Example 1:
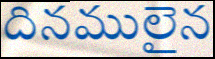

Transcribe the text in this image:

దినములైన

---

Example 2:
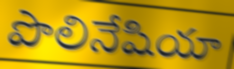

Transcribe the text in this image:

పొలినేషియా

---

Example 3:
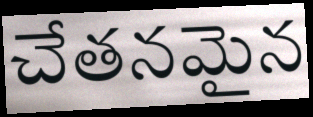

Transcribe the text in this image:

చేతనమైన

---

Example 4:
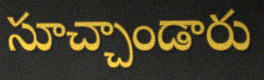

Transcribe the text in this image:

సూచ్చాండారు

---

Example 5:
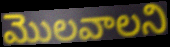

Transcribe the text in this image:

మొలవాలని